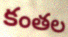
కంతల